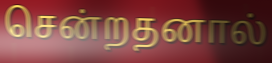
சென்றதனால்